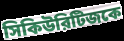
সিকিউরিটিজকে